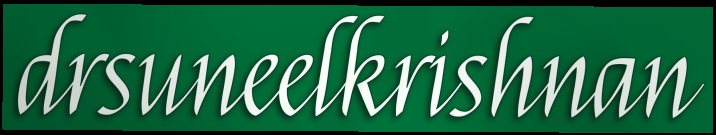
drsuneelkrishnan